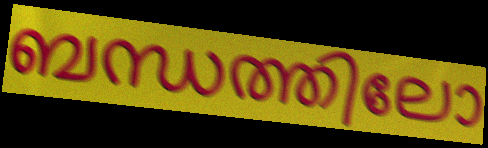
ബന്ധത്തിലോ